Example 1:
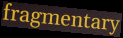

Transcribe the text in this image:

fragmentary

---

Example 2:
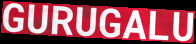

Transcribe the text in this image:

GURUGALU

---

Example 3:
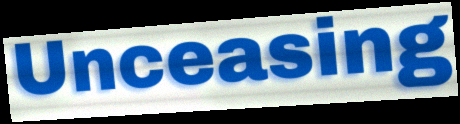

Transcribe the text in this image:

Unceasing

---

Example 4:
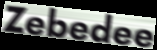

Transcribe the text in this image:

Zebedee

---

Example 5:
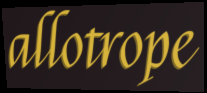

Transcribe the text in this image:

allotrope